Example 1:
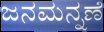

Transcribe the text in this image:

ಜನಮನ್ನಣೆ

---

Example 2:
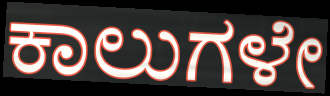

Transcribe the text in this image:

ಕಾಲುಗಳೇ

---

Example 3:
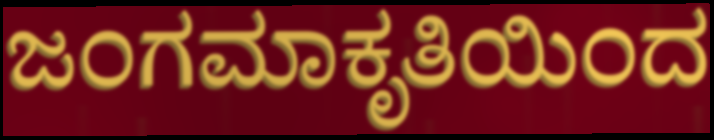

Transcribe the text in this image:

ಜಂಗಮಾಕೃತಿಯಿಂದ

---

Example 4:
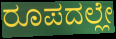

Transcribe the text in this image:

ರೂಪದಲ್ಲೇ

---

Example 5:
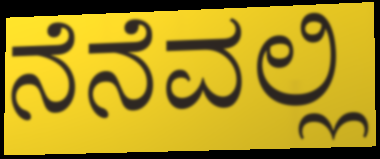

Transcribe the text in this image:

ನೆನೆವಲ್ಲಿ